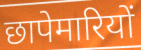
छापेमारियों